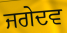
ਜਗੇਦਵ